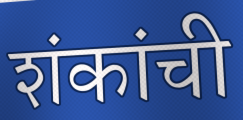
शंकांची